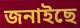
জনাইছে